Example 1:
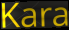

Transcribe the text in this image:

Kara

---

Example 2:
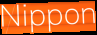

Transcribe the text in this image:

Nippon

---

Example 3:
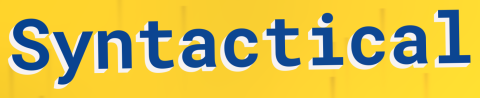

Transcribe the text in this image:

Syntactical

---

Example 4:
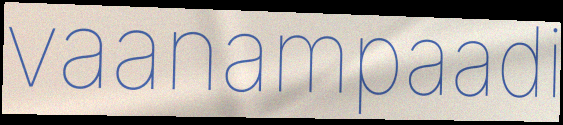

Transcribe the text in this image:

vaanampaadi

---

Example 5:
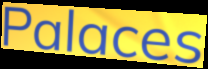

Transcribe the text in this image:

Palaces